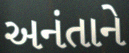
અનંતાને